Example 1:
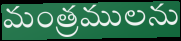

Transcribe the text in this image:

మంత్రములను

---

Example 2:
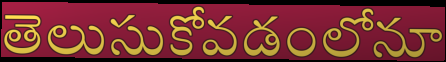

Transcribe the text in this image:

తెలుసుకోవడంలోనూ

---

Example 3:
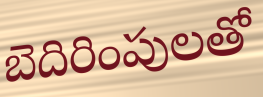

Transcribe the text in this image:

బెదిరింపులతో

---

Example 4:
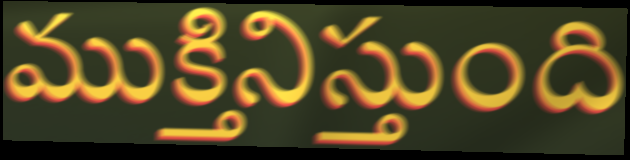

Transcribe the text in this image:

ముక్తినిస్తుంది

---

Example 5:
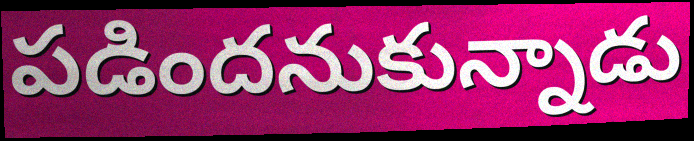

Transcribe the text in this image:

పడిందనుకున్నాడు